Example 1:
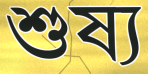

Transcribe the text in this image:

শুষ্য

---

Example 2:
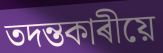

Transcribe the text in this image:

তদন্তকাৰীয়ে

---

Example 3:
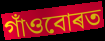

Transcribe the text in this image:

গাঁওবোৰত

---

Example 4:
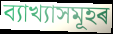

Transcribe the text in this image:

ব্যাখ্যাসমূহৰ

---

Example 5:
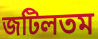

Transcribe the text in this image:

জটিলতম